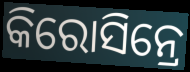
କିରୋସିନ୍ରେ